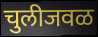
चुलीजवळ